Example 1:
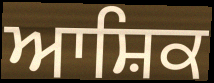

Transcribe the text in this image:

ਆਸ਼ਿਕ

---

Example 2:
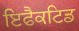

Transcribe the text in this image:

ਇਫੈਕਟਿਡ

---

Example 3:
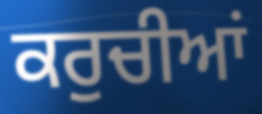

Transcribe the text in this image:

ਕਰੁਚੀਆਂ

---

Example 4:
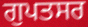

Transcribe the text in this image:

ਗੁਪਤਸਰ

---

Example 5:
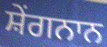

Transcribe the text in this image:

ਸ਼ੇਂਗਨਾਨ